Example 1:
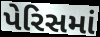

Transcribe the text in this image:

પેરિસમાં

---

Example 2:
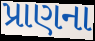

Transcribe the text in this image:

પ્રાણના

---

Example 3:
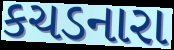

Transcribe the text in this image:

કચડનારા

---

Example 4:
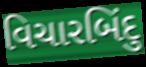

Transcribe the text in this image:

વિચારબિંદુ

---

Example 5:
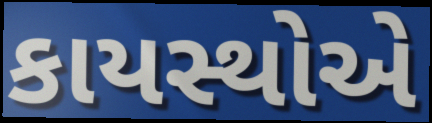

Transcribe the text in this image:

કાયસ્થોએ